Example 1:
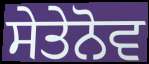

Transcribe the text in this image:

ਸੇਤੇਨੋਵ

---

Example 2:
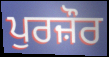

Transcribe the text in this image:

ਪੁਰਜ਼ੌਰ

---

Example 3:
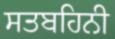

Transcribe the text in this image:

ਸਤਬਹਿਨੀ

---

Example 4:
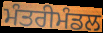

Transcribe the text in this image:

ਮੰਤਰੀਮੰਡਲ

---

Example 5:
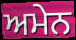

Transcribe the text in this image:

ਅਮੇਨ